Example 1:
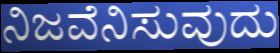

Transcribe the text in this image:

ನಿಜವೆನಿಸುವುದು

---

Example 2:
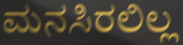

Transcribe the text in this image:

ಮನಸಿರಲಿಲ್ಲ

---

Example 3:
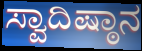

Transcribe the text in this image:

ಸ್ವಾದಿಷ್ಠಾನ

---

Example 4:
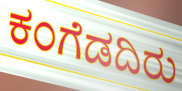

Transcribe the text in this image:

ಕಂಗೆಡದಿರು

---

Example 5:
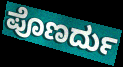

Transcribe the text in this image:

ಪೊಣರ್ದು